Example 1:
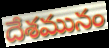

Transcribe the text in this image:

దేశమునం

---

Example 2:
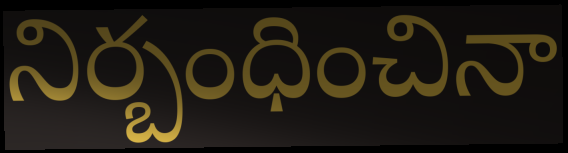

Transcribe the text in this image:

నిర్బంధించినా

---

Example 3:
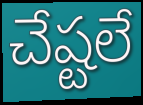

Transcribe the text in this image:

చేష్టలే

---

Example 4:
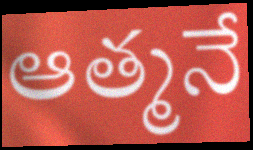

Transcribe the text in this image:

ఆత్మనే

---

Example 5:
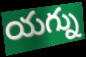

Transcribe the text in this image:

యగ్ను